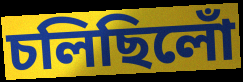
চলিছিলোঁ